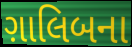
ગ઼ાલિબના